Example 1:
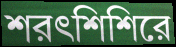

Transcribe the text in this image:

শরৎশিশিরে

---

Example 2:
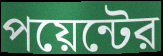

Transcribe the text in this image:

পয়েন্টের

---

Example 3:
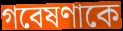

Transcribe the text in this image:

গবেষণাকে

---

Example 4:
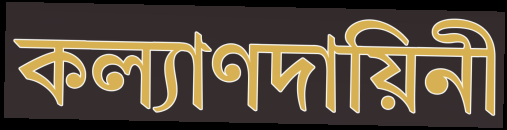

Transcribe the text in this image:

কল্যাণদায়িনী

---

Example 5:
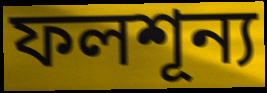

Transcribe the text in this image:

ফলশূন্য